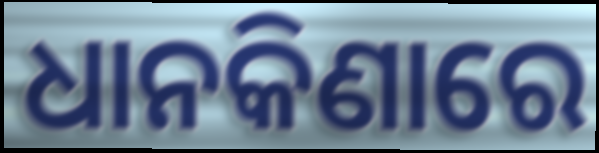
ଧାନକିଣାରେ